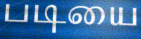
படியை